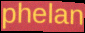
phelan